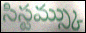
సిస్టమ్స్కు